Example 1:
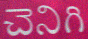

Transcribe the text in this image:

చెనిగి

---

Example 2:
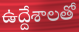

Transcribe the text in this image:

ఉద్దేశాలతో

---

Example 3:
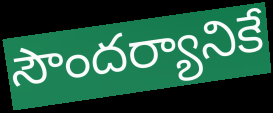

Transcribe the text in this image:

సౌందర్యానికే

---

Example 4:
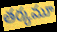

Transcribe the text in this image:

తర్కమూ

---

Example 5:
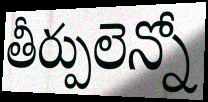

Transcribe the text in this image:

తీర్పులెన్నో